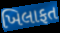
ખિલાફત